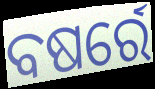
ବଷର୍ରେ